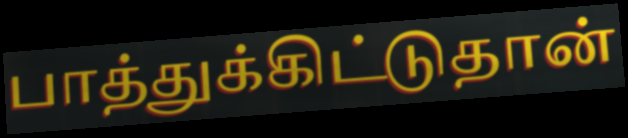
பாத்துக்கிட்டுதான்